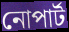
নোপার্ট